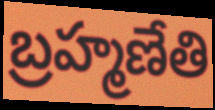
బ్రహ్మణేతి